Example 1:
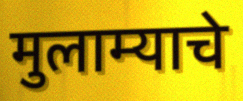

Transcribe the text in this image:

मुलाम्याचे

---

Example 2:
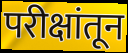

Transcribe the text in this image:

परीक्षांतून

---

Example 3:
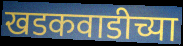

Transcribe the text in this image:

खडकवाडीच्या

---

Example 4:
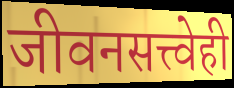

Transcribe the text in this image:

जीवनसत्त्वेही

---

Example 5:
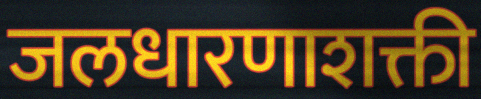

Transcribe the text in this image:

जलधारणाशक्ती